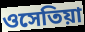
ওসেতিয়া